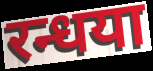
रन्धया